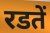
रडतें